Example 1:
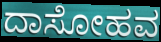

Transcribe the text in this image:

ದಾಸೋಹವ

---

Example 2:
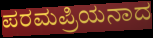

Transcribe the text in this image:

ಪರಮಪ್ರಿಯನಾದ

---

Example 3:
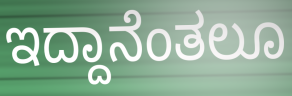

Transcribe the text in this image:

ಇದ್ದಾನೆಂತಲೂ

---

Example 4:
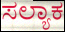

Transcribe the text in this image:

ಸಲ್ಯಾಕ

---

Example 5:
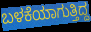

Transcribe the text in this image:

ಬಳಕೆಯಾಗುತ್ತಿದ್ದ